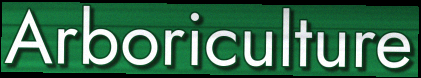
Arboriculture